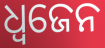
ଧ୍ଵଜେନ